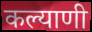
कल्याणी